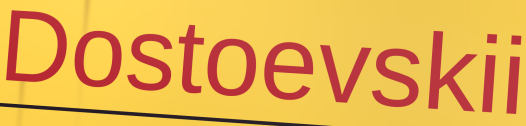
Dostoevskii